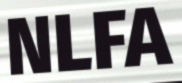
NLFA